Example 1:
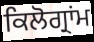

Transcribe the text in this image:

ਕਿਲੋਗ੍ਰਾਂਮ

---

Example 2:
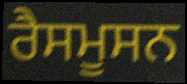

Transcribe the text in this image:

ਰੈਸਮੂਸਨ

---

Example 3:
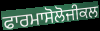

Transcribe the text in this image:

ਫਾਰਮਾਸੋਲੋਜੀਕਲ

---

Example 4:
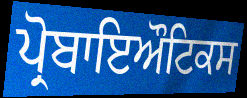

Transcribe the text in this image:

ਪ੍ਰੋਬਾਇਔਟਿਕਸ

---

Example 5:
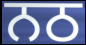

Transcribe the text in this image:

ਨਠ